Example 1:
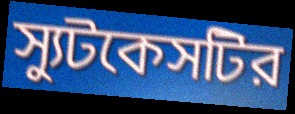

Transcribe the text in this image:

স্যুটকেসটির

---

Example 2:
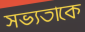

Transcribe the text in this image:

সভ্যতাকে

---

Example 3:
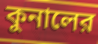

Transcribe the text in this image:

কুনালের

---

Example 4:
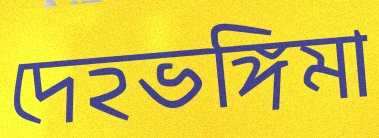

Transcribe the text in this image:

দেহভঙ্গিমা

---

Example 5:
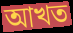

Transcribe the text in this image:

আখত